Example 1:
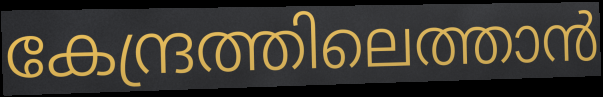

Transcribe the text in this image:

കേന്ദ്രത്തിലെത്താൻ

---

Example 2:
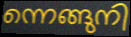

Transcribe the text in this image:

ന്നെങ്ങുനി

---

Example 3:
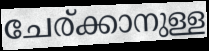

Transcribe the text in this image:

ചേര്ക്കാനുള്ള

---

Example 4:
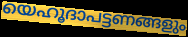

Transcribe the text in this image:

യെഹൂദാപട്ടണങ്ങളും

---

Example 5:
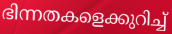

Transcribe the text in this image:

ഭിന്നതകളെക്കുറിച്ച്